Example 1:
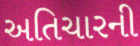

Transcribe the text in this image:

અતિચારની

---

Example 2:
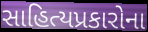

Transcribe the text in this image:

સાહિત્યપ્રકારોના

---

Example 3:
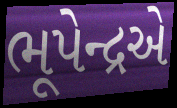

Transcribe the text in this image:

ભૂપેન્દ્રએ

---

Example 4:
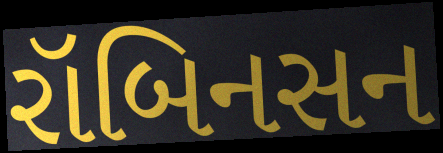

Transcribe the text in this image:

રૉબિનસન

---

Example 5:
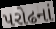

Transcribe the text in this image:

પરોઢનાં